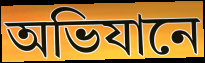
অভিযানে